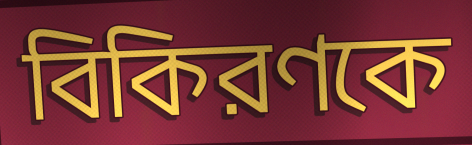
বিকিরণকে